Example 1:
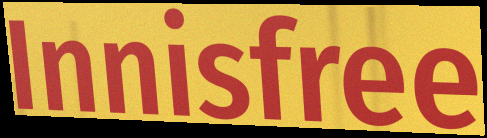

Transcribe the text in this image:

Innisfree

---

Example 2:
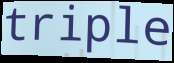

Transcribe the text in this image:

triple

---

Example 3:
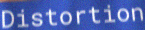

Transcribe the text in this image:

Distortion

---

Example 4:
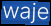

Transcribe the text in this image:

waje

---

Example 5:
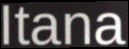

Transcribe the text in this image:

Itana